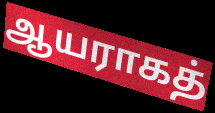
ஆயராகத்